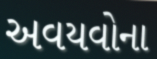
અવયવોના